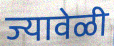
ज्यावेळी